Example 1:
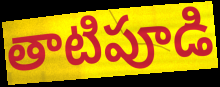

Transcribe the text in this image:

తాటిపూడి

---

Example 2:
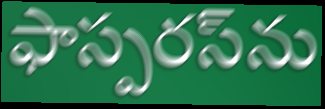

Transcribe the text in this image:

ఫాస్పరస్‌ను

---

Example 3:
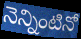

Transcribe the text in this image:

నెన్నింటినో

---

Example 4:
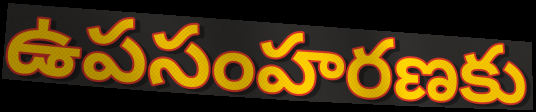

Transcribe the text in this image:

ఉపసంహరణకు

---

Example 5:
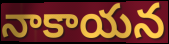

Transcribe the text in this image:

నాకాయన